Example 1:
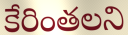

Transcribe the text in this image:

కేరింతలని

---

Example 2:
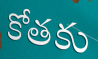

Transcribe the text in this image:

కోతకు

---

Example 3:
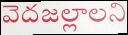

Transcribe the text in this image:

వెదజల్లాలని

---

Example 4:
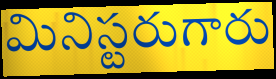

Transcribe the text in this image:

మినిస్టరుగారు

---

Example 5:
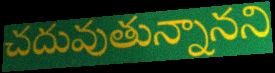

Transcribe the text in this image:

చదువుతున్నానని